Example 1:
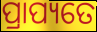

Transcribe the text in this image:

ପ୍ରାପ୍ୟତେ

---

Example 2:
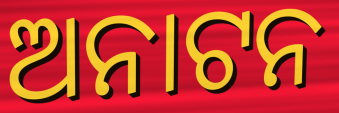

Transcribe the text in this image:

ଅନାଟନ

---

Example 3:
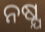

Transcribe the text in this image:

ନଷ୍ଯ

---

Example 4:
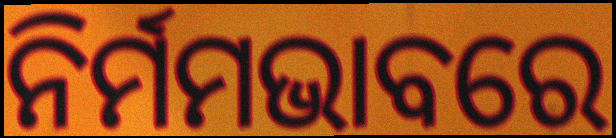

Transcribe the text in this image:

ନିର୍ମମଭାବରେ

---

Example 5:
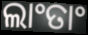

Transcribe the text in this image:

ଲାଂତାଂ